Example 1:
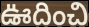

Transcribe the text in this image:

ఊదించి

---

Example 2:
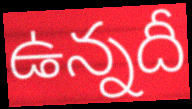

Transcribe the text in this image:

ఉన్నదీ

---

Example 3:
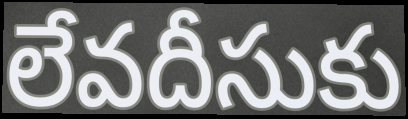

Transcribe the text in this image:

లేవదీసుకు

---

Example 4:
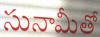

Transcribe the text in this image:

సునామీతో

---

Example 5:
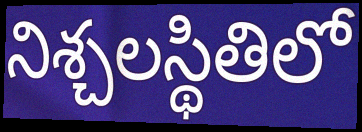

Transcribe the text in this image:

నిశ్చలస్థితిలో